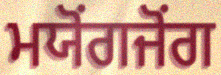
ਮਯੋਂਗਜੋਂਗ